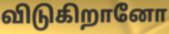
விடுகிறானோ